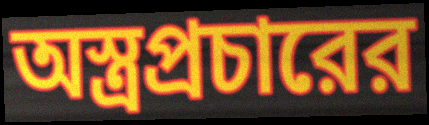
অস্ত্রপ্রচারের